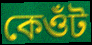
কেওঁট